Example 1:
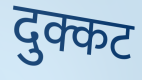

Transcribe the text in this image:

दुक्कट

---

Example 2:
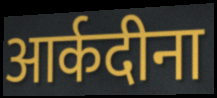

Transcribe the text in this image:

आर्कदीना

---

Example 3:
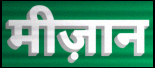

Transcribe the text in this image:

मीज़ान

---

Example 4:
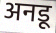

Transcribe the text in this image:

अनडू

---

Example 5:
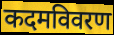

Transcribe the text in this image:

कदमविवरण